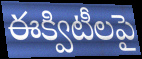
ఈక్విటీలపై